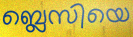
ബ്ലെസിയെ